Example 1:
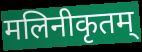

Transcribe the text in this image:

मलिनीकृतम्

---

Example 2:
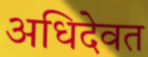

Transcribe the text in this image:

अधिदेवत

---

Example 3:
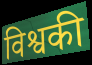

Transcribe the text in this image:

विश्वकी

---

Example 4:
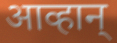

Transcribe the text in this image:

आव्हान्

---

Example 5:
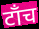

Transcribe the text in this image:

टाँच